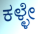
ಕಳ್ಳೇ